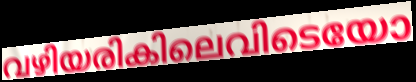
വഴിയരികിലെവിടെയോ